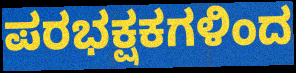
ಪರಭಕ್ಷಕಗಳಿಂದ